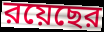
রয়েছের